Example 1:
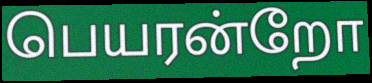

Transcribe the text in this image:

பெயரன்றோ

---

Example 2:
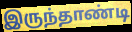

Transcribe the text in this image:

இருந்தாண்டி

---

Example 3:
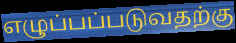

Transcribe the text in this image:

எழுப்பப்படுவதற்கு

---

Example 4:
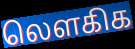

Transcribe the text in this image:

லௌகிக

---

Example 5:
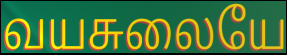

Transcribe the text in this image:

வயசுலையே